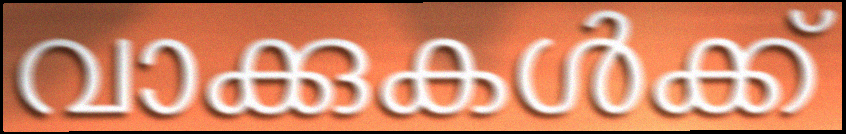
വാക്കുകൾക്ക്